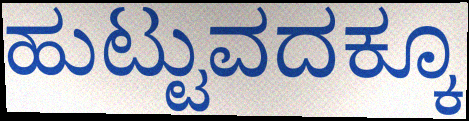
ಹುಟ್ಟುವದಕ್ಕೂ